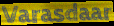
Varasdaar